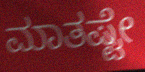
ಮಾತಷ್ಟೇ